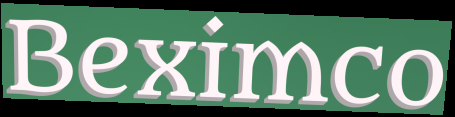
Beximco